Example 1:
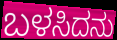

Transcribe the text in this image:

ಬಳಸಿದನು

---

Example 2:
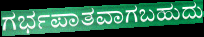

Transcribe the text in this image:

ಗರ್ಭಪಾತವಾಗಬಹುದು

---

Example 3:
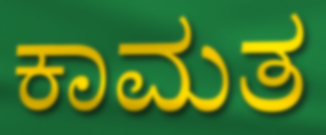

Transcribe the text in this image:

ಕಾಮತ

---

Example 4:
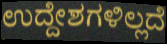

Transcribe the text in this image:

ಉದ್ದೇಶಗಳಿಲ್ಲದೆ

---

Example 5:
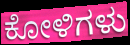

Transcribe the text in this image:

ಕೋಳಿಗಳು